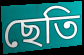
ছেতি